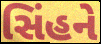
સિંહને